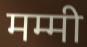
मम्‍मी